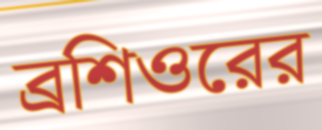
ব্রশিওরের